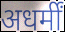
अधर्मीं